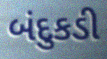
બંદુકડી